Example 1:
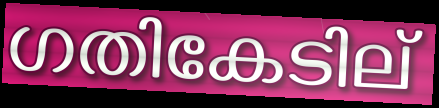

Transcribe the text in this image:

ഗതികേടില്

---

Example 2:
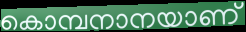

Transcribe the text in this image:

കൊമ്പനാനയാണ്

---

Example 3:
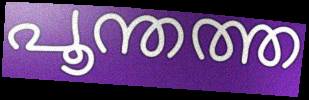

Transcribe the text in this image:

പൂന്തത്ത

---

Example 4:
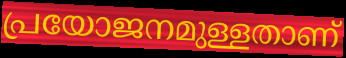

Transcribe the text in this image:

പ്രയോജനമുള്ളതാണ്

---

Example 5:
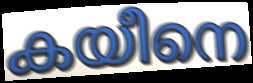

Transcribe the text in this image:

കയീനെ